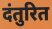
दंतुरित